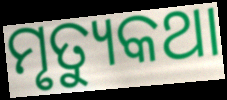
ମୃତ୍ୟୁକଥା